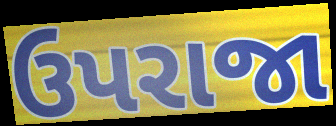
ઉપરાજા